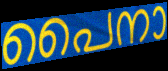
പൈനാ